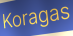
Koragas